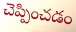
చెప్పించడం